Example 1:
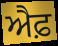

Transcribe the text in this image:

ਐਫ਼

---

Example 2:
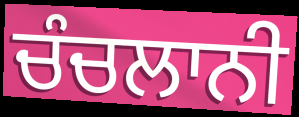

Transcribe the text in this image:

ਚੰਚਲਾਨੀ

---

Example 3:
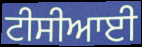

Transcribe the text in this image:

ਟੀਸੀਆਈ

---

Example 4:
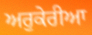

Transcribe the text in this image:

ਅਰੁਕੇਰੀਆ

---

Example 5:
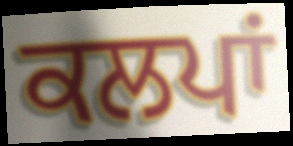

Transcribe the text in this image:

ਕਲਪਾਂ